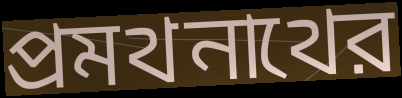
প্রমথনাথের